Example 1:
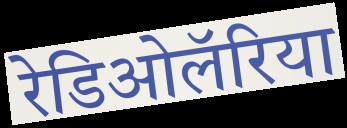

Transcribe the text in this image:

रेडिओलॅरिया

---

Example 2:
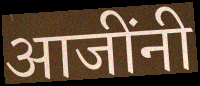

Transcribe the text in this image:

आजींनी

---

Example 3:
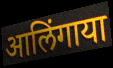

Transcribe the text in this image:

आलिंगाया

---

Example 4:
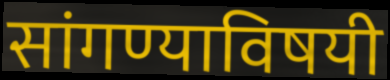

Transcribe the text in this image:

सांगण्याविषयी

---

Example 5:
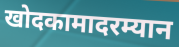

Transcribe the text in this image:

खोदकामादरम्यान